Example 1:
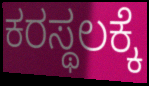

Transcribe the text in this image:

ಕರಸ್ಥಲಕ್ಕೆ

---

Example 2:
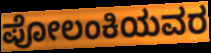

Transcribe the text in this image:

ಪೋಲಂಕಿಯವರ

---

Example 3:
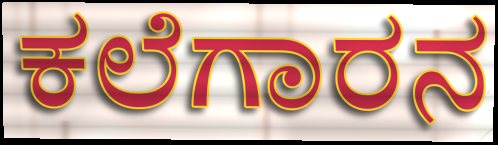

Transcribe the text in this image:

ಕಲೆಗಾರನ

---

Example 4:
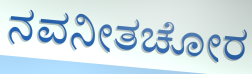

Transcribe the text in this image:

ನವನೀತಚೋರ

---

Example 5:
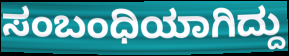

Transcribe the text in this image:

ಸಂಬಂಧಿಯಾಗಿದ್ದು